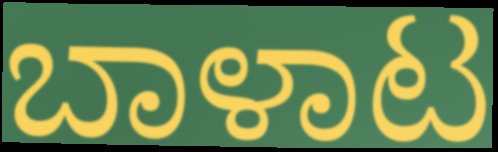
ಬಾಳಾಟ